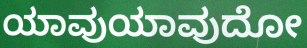
ಯಾವುಯಾವುದೋ